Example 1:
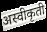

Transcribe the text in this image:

अस्वीकृती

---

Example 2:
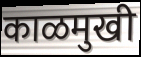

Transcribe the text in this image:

काळमुखी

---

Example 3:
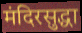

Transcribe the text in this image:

मंदिरसुद्धा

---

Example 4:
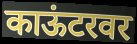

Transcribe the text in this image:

काऊंटरवर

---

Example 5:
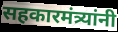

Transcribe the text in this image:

सहकारमंत्र्यांनी